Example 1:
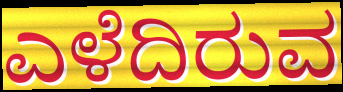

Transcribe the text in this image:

ಎಳೆದಿರುವ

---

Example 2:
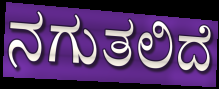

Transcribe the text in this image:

ನಗುತಲಿದೆ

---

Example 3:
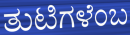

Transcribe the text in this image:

ತುಟಿಗಳೆಂಬ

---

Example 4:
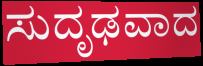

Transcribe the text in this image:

ಸುದೃಢವಾದ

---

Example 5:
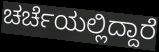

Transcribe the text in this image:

ಚರ್ಚೆಯಲ್ಲಿದ್ದಾರೆ